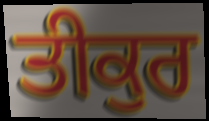
ਤੀਕੁਰ